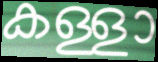
കള്ളാ